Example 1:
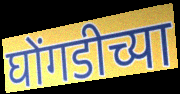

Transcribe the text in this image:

घोंगडीच्या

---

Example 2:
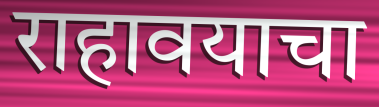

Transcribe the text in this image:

राहावयाचा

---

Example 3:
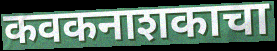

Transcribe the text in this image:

कवकनाशकाचा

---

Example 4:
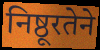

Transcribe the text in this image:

निष्ठूरतेने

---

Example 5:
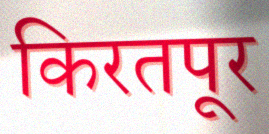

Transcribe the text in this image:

किरतपूर